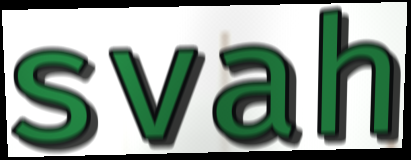
svah